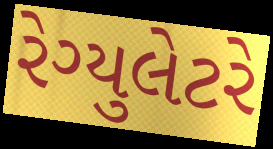
રેગ્યુલેટરે